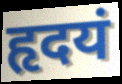
हृदयं